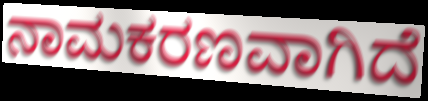
ನಾಮಕರಣವಾಗಿದೆ